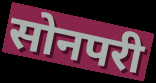
सोनपरी